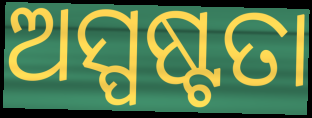
ଅସ୍ପଷ୍ଟତା